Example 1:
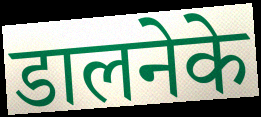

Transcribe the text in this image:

डालनेके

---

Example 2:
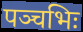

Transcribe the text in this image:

पञ्चभिः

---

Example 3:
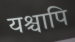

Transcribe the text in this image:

यश्चापि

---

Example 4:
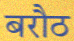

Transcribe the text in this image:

बरौठ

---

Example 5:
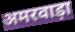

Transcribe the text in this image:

अमरवाड़ा